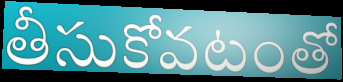
తీసుకోవటంతో